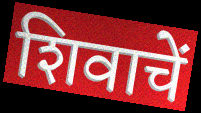
शिवाचें